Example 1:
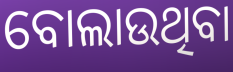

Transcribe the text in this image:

ବୋଲାଉଥିବା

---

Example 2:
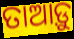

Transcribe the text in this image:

ତାଆଡ଼ୁ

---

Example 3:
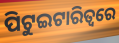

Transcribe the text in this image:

ପିଟୁଇଟାରିତ୍ୱରେ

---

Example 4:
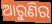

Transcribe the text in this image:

ଆରୁଣିର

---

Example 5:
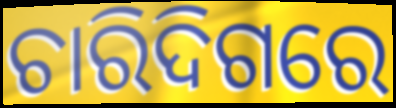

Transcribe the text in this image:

ଚାରିଦିଗରେ